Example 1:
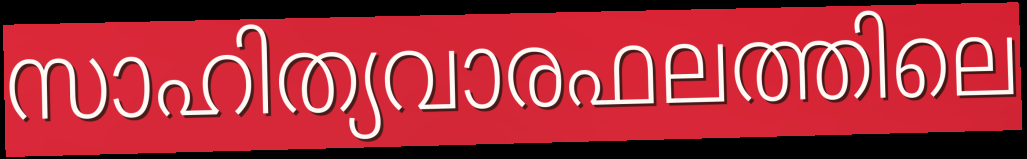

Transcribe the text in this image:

സാഹിത്യവാരഫലത്തിലെ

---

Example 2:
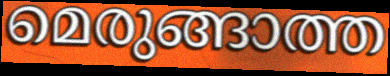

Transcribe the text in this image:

മെരുങ്ങാത്ത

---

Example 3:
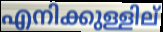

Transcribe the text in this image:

എനിക്കുള്ളില്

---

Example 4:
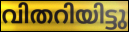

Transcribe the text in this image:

വിതറിയിട്ടു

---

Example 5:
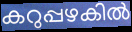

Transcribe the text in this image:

കറുപ്പഴകിൽ